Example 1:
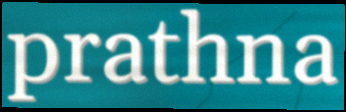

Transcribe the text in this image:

prathna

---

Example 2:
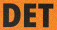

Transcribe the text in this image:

DET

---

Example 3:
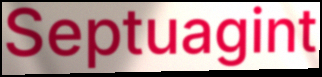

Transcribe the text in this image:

Septuagint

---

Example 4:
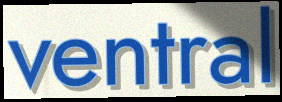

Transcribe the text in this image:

ventral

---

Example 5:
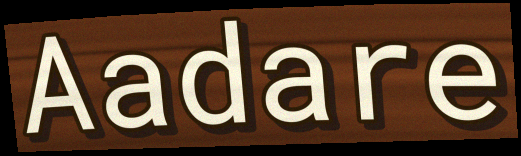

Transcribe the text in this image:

Aadare